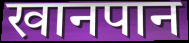
खानपान